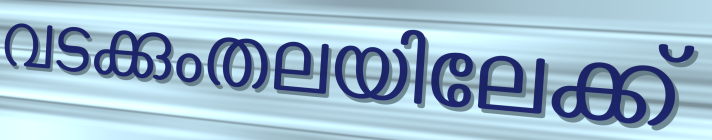
വടക്കുംതലയിലേക്ക്